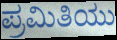
ಪ್ರಮಿತಿಯು